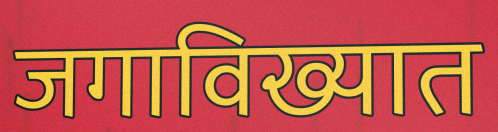
जगाविख्यात